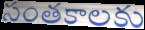
సంతకాలకు